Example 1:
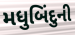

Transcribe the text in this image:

મધુબિંદુની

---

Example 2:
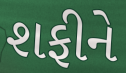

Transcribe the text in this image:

શફીને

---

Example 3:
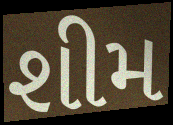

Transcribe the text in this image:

શીમ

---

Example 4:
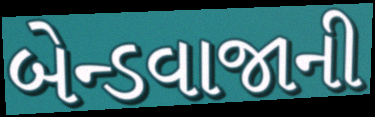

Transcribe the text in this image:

બેન્ડવાજાની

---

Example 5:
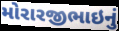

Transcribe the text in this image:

મોરારજીભાઇનું